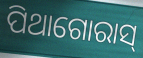
ପିଥାଗୋରାସ୍